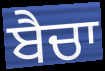
ਬੈਚਾ